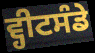
ਵ੍ਹੀਟਸੰਡੇ